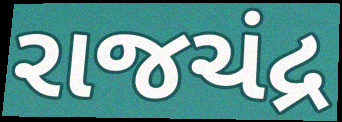
રાજચંદ્ર